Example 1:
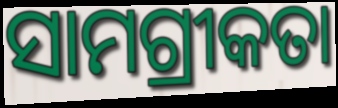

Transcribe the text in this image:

ସାମଗ୍ରୀକତା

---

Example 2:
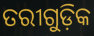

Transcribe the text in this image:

ତରୀଗୁଡ଼ିକ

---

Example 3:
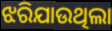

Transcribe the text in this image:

ଝରିଯାଉଥିଲା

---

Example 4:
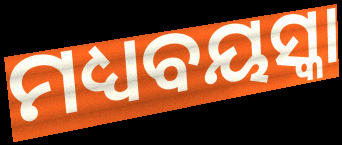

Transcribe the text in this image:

ମଧ୍ୟବୟସ୍କା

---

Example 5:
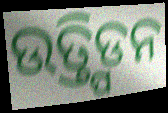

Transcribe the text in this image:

ଉତ୍ତ୍ପିଡନ